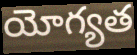
యోగ్యత